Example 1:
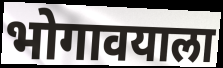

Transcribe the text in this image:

भोगावयाला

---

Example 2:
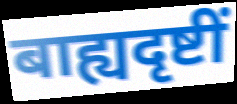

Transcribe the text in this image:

बाह्यदृष्टीं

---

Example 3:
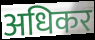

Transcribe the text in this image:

अधिकर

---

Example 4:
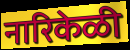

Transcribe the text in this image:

नारिकेळी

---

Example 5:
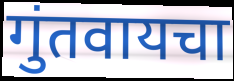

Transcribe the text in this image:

गुंतवायचा